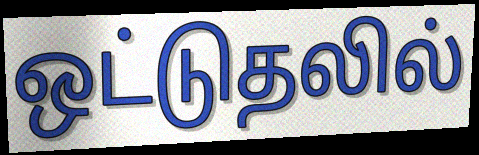
ஒட்டுதலில்